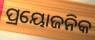
ପ୍ରୟୋଜନିକ